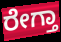
ರೇಗ್ತಾ